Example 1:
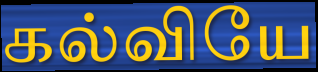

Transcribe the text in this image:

கல்வியே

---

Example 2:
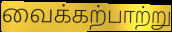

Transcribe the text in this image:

வைக்கற்பாற்று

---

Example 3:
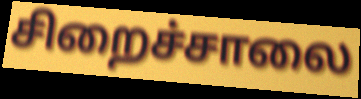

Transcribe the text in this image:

சிறைச்சாலை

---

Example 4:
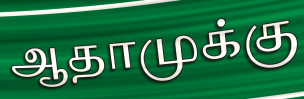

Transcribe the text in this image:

ஆதாமுக்கு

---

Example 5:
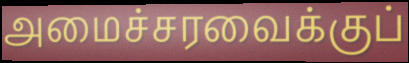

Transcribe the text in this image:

அமைச்சரவைக்குப்